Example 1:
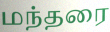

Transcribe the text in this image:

மந்தரை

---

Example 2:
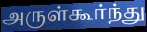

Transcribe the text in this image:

அருள்கூர்ந்து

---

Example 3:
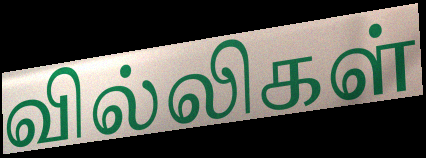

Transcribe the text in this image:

வில்லிகள்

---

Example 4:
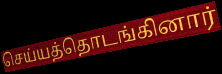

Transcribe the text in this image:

செய்யத்தொடங்கினார்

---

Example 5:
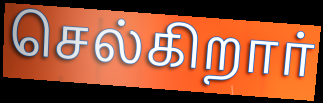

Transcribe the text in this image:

செல்கிறார்